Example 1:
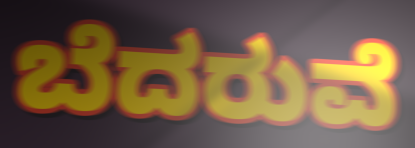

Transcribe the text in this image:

ಬೆದರುವೆ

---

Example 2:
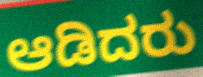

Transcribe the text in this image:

ಆಡಿದರು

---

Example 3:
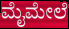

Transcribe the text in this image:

ಮೈಮೇಲೆ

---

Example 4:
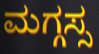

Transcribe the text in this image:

ಮಗ್ಗಸ್ಸ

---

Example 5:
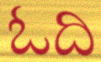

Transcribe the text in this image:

ಓದಿ